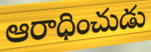
ఆరాధించుడు